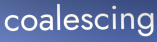
coalescing